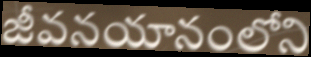
జీవనయానంలోని